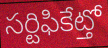
సర్టిఫికేట్తో